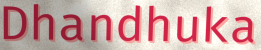
Dhandhuka